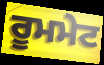
ਰੂਮਮੇਟ